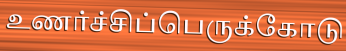
உணர்ச்சிப்பெருக்கோடு